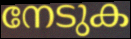
നേടുക